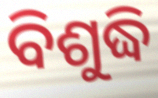
ବିଶୁଦ୍ଧି